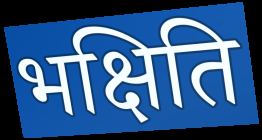
भक्षिति